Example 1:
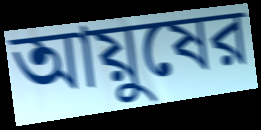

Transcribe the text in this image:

আয়ুষের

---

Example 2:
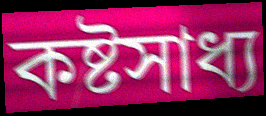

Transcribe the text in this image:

কষ্টসাধ্য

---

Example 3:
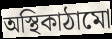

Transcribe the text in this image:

অস্থিকাঠামো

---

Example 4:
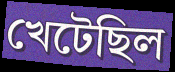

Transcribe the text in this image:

খেটেছিল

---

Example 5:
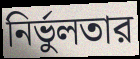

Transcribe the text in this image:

নির্ভুলতার